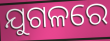
ଯୁଗଳରେ